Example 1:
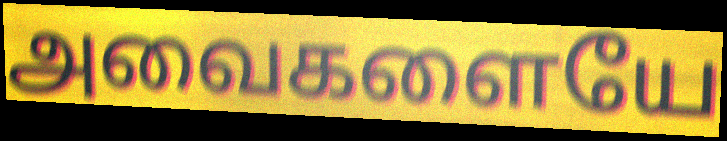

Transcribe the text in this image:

அவைகளையே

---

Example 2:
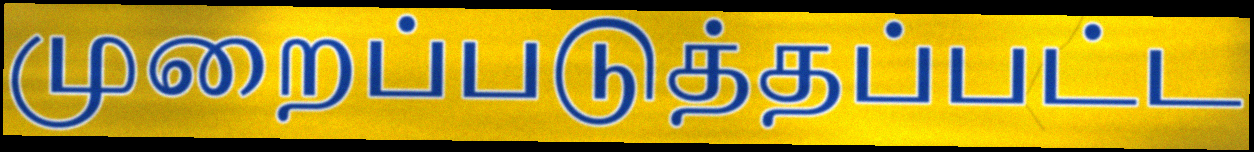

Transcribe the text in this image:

முறைப்படுத்தப்பட்ட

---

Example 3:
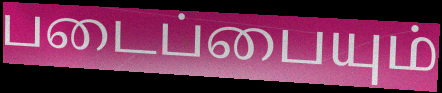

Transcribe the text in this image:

படைப்பையும்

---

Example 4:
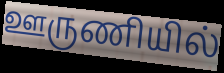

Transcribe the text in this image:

ஊருணியில்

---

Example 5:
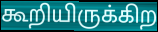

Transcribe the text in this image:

கூறியிருக்கிற